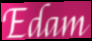
Edam